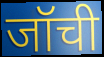
जॉची